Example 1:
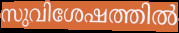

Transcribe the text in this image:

സുവിശേഷത്തിൽ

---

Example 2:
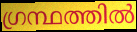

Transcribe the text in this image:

ഗ്രന്ഥത്തിൽ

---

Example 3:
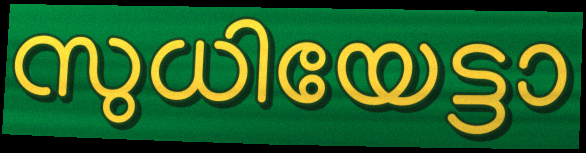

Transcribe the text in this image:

സുധിയേട്ടാ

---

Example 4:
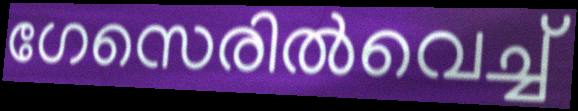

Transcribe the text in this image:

ഗേസെരിൽവെച്ച്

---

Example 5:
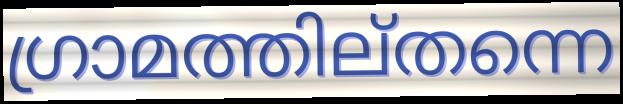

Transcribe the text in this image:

ഗ്രാമത്തില്തന്നെ